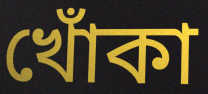
খোঁকা